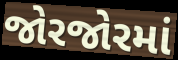
જોરજોરમાં